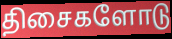
திசைகளோடு